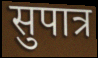
सुपात्र